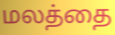
மலத்தை